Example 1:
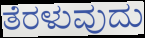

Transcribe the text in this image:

ತೆರಳುವುದು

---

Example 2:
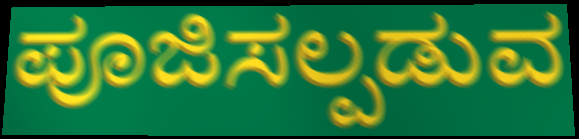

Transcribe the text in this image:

ಪೂಜಿಸಲ್ಪಡುವ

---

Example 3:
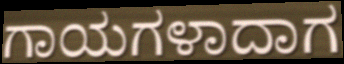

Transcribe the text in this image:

ಗಾಯಗಳಾದಾಗ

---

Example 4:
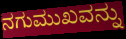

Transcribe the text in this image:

ನಗುಮುಖವನ್ನು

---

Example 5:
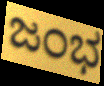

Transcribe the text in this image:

ಜಂಭ